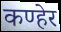
कण्हेर